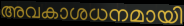
അവകാശധനമായി